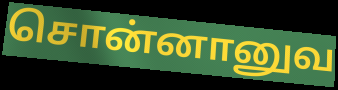
சொன்னானுவ